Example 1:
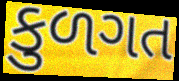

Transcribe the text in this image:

કુળગત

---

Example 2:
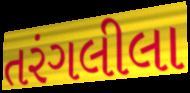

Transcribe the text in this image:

તરંગલીલા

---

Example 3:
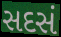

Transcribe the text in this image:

સદસં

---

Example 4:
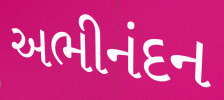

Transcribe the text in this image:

અભીનંદન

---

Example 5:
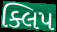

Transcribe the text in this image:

ક્લિપ